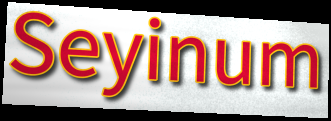
Seyinum